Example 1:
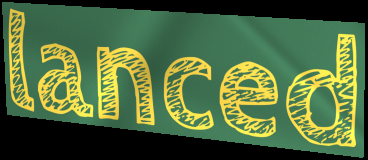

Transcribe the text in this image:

lanced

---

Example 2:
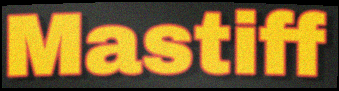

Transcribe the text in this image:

Mastiff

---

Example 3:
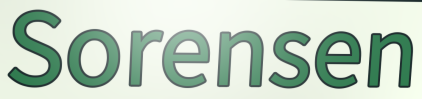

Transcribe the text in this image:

Sorensen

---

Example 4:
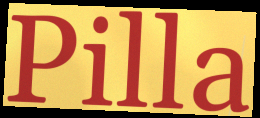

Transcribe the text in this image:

Pilla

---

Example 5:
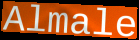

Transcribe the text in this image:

Almale